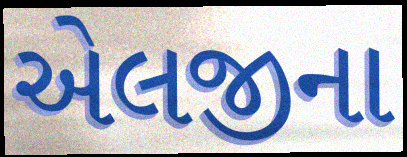
એલજીના